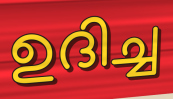
ഉദിച്ച